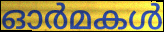
ഓർമകൾ